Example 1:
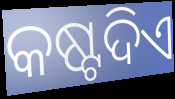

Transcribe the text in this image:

କଷ୍ଟଦିଏ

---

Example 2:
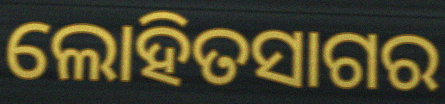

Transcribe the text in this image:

ଲୋହିତସାଗର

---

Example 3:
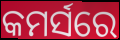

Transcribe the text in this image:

କମର୍ସରେ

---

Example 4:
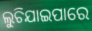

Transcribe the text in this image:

ଲୁଚିଯାଇପାରେ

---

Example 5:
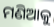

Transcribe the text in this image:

ମଣିଆକୁ